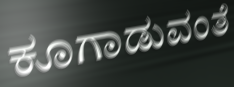
ಕೂಗಾಡುವಂತೆ